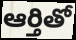
ఆర్తితో